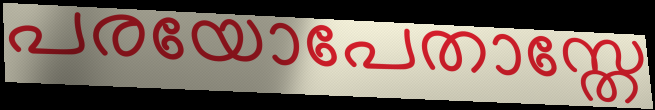
പരയോപേതാസ്തേ